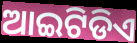
ଆଇଟିଡିଏ